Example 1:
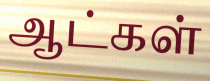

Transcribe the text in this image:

ஆட்கள்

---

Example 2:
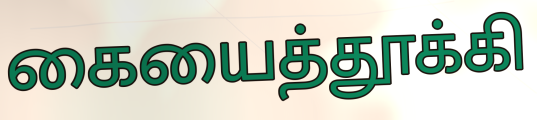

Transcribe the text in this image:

கையைத்தூக்கி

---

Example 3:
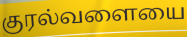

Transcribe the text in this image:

குரல்வளையை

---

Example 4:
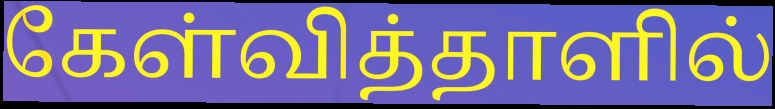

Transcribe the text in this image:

கேள்வித்தாளில்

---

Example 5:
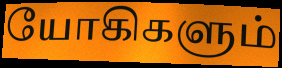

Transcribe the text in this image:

யோகிகளும்